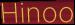
Hinoo